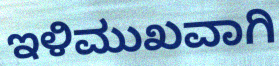
ಇಳಿಮುಖವಾಗಿ